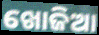
ଖୋଜିଆ